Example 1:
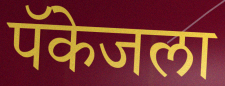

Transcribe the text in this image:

पॅकेजला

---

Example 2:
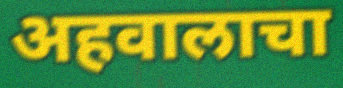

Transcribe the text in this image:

अहवालाचा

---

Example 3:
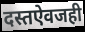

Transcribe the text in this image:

दस्तऐवजही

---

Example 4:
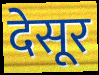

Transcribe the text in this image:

देसूर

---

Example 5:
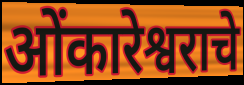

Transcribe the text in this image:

ओंकारेश्वराचे